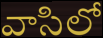
వాసిలో